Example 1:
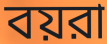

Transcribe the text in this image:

বয়রা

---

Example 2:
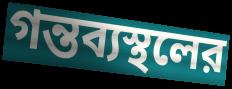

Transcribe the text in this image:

গন্তব্যস্থলের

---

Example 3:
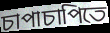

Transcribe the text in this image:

চাপাচাপিতে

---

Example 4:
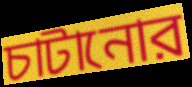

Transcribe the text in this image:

চাটানোর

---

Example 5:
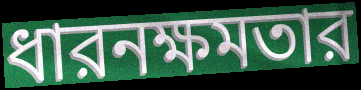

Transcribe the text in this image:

ধারনক্ষমতার